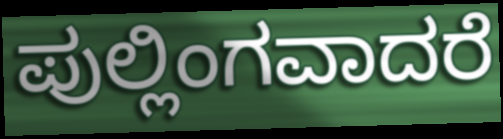
ಪುಲ್ಲಿಂಗವಾದರೆ